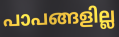
പാപങ്ങളില്ല